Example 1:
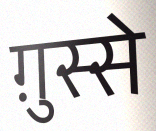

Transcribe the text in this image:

ग़ुस्से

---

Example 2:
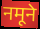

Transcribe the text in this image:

नमूने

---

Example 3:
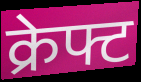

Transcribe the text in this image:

क्रेफ्ट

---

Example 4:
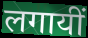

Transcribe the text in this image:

लगायीं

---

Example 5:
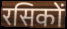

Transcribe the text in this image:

रसिकों